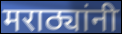
मराठ्यांनी